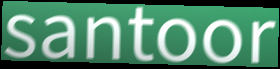
santoor